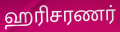
ஹரிசரணர்